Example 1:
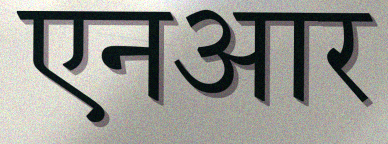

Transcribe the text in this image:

एनआर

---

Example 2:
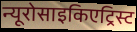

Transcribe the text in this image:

न्यूरोसाइकिएट्रिस्ट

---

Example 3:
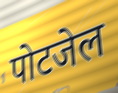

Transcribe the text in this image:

पोटजेल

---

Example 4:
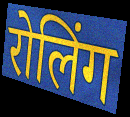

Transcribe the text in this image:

रोलिंग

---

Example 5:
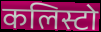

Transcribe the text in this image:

कलिस्टो